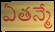
ఏతన్మే